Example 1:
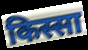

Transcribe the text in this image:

किस्सा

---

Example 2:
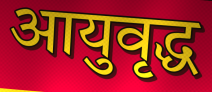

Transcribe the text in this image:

आयुवृद्ध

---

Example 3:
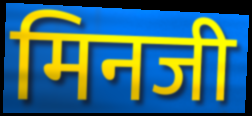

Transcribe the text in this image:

मिनजी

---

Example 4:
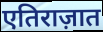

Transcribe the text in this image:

एतिराज़ात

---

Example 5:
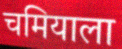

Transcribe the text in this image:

चमियाला